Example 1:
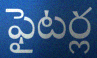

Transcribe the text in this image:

ఫైటర్ల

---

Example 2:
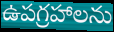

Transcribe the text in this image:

ఉపగ్రహాలను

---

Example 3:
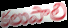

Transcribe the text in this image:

కలుపాలి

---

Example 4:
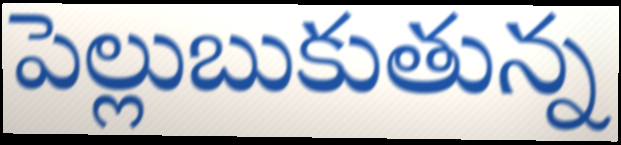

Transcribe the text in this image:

పెల్లుబుకుతున్న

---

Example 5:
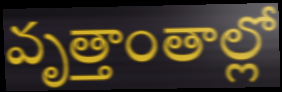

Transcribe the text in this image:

వృత్తాంతాల్లో